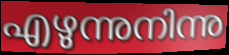
എഴുന്നുനിന്നു